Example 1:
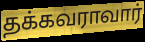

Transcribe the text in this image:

தக்கவராவார்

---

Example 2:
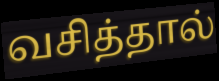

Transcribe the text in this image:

வசித்தால்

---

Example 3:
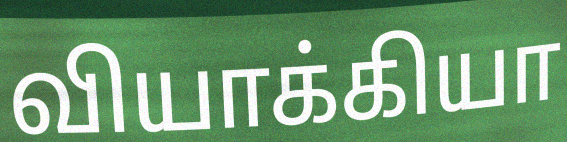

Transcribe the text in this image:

வியாக்கியா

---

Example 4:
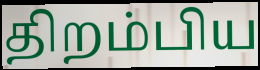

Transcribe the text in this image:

திறம்பிய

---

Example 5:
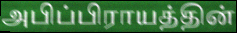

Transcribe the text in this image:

அபிப்பிராயத்தின்